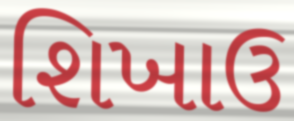
શિખાઉ